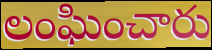
లంఘించారు